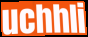
uchhli